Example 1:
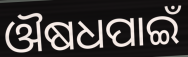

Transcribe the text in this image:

ଔଷଧପାଇଁ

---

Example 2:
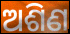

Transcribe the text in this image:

ଅଶିଣ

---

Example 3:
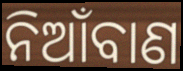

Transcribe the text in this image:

ନିଆଁବାଣ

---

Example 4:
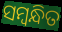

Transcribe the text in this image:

ସମ୍ଵନ୍ଧିତ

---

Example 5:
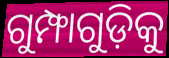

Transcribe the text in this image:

ଗୁମ୍ଫାଗୁଡ଼ିକୁ